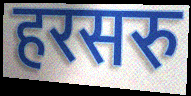
हरसरु